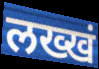
लख्खं